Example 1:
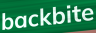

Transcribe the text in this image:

backbite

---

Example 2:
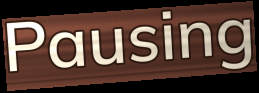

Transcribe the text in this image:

Pausing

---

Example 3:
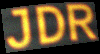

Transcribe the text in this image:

JDR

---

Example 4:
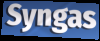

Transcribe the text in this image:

Syngas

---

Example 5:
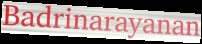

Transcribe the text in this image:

Badrinarayanan